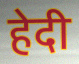
हेदी